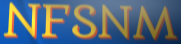
NFSNM